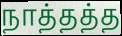
நாத்தத்த